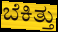
ಬೆಕಿತ್ತು